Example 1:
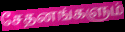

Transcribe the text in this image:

சேதனங்களும்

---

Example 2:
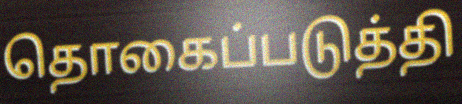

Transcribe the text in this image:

தொகைப்படுத்தி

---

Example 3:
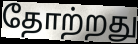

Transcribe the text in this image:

தோற்றது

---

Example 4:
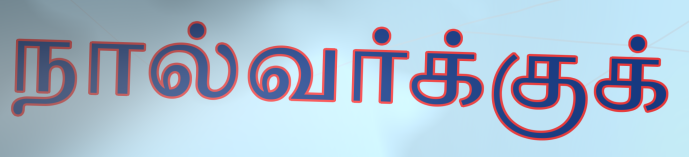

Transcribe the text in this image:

நால்வர்க்குக்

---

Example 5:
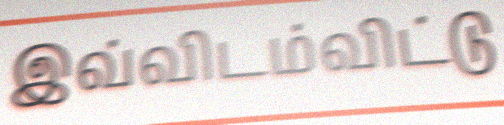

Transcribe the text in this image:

இவ்விடம்விட்டு